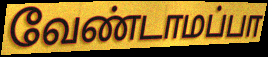
வேண்டாமப்பா